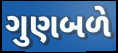
ગુણબળે